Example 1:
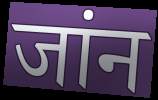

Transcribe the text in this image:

जांन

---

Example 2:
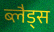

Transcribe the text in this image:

ब्लैड्स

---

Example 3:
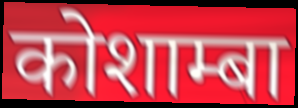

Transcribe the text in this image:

कोशाम्बा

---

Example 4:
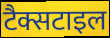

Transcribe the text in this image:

टैक्सटाइल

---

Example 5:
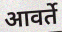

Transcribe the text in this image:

आवर्ते